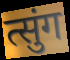
त्सुंग